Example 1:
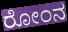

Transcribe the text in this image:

ರೋಂನ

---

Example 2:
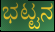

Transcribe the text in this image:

ಭಟ್ಟನ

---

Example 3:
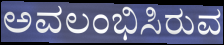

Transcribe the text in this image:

ಅವಲಂಭಿಸಿರುವ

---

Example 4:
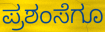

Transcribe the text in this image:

ಪ್ರಶಂಸೆಗೂ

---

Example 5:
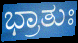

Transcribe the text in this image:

ಭ್ರಾತುಃ